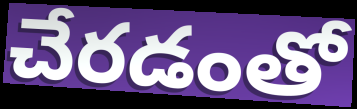
చేరడంతో